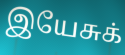
இயேசுக்